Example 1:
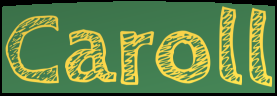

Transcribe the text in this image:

Caroll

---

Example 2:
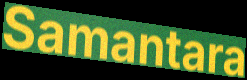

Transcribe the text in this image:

Samantara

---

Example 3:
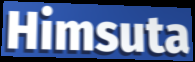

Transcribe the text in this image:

Himsuta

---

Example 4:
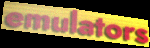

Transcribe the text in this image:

emulators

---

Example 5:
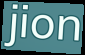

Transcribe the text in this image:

jion